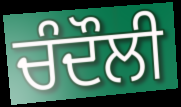
ਚੰਦੌਲੀ